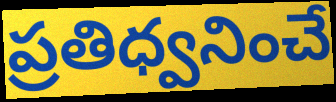
ప్రతిధ్వనించే